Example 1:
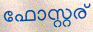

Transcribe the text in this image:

ഫോസ്റ്റര്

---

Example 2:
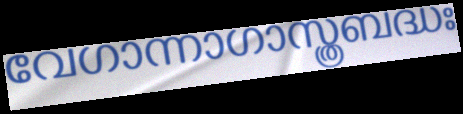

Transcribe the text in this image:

വേഗാന്നാഗാസ്ത്രബദ്ധഃ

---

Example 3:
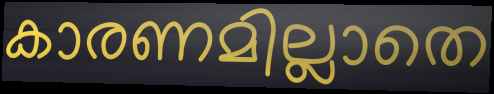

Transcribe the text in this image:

കാരണമില്ലാതെ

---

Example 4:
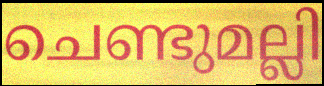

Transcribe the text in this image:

ചെണ്ടുമല്ലി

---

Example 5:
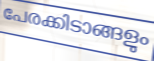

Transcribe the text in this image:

പേരക്കിടാങ്ങളും